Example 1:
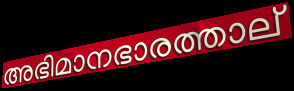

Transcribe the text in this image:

അഭിമാനഭാരത്താല്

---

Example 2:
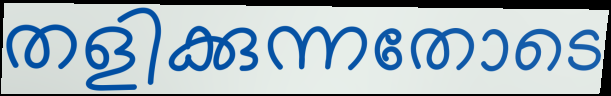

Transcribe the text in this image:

തളിക്കുന്നതോടെ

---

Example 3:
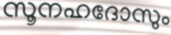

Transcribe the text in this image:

സൂനഹദോസും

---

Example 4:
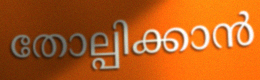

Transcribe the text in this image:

തോല്പിക്കാൻ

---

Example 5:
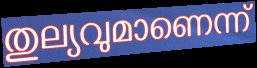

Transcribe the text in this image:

തുല്യവുമാണെന്ന്